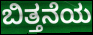
ಬಿತ್ತನೆಯ